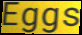
Eggs